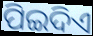
ପିଇଦିଏ